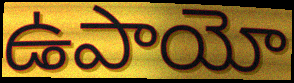
ఉపాయో